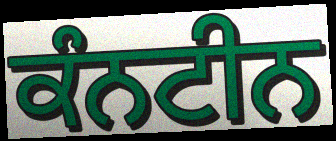
ਕੰਨਟੀਨ